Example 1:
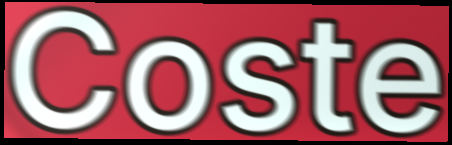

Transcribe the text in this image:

Coste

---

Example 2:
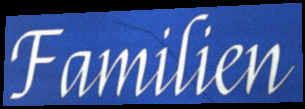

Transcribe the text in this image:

Familien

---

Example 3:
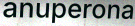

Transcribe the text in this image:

anuperona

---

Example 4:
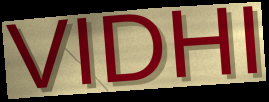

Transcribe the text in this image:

VIDHI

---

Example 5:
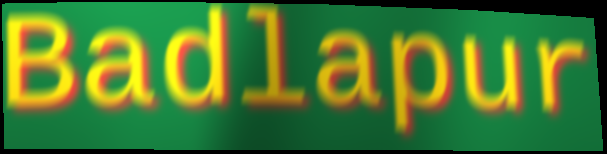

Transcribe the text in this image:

Badlapur